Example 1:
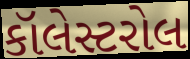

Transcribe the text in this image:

કૉલેસ્ટરોલ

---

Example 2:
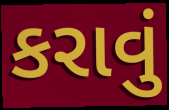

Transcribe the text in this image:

કરાવું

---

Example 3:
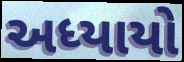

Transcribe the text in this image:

અધ્યાયો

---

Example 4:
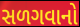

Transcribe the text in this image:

સળગવાનો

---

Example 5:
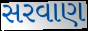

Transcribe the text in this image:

સરવાણ